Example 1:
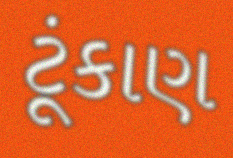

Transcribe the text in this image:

ટૂંકાણ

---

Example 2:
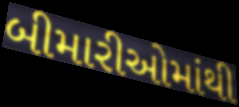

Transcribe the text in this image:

બીમારીઓમાંથી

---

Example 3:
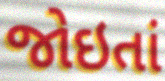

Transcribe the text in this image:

જોઇતાં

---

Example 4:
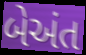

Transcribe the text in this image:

બેઅંત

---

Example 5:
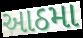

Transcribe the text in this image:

આઠમા